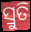
ସ୍ରୁତି